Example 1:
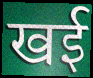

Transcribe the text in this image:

खई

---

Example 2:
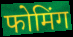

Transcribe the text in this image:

फोमिंग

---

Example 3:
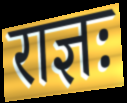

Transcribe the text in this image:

राज्ञः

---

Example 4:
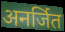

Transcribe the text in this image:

अनर्जित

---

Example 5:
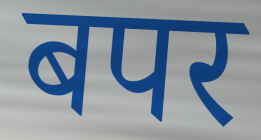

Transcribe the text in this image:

बपर